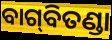
ବାଗ୍‌ବିତଣ୍ଡା